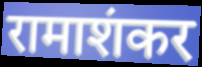
रामाशंकर